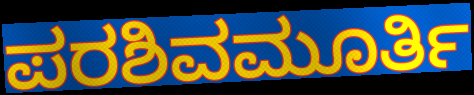
ಪರಶಿವಮೂರ್ತಿ